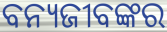
ବନ୍ୟଜୀବଙ୍କର